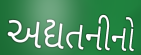
અદ્યતનીનો